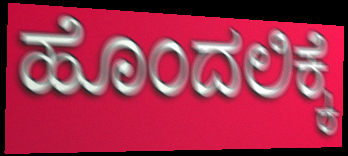
ಹೊಂದಲಿಕ್ಕೆ